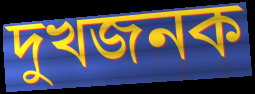
দুখজনক